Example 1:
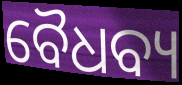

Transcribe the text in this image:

ବୈଧବ୍ୟ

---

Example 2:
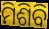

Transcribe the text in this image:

ମିଶିବି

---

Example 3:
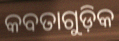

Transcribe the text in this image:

କବତାଗୁଡ଼ିକ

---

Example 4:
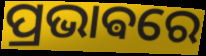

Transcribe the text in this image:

ପ୍ରଭାଵରେ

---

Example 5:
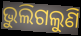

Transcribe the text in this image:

ଭୁଲିଗଲୁଣି